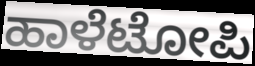
ಹಾಳೆಟೋಪಿ